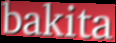
bakita